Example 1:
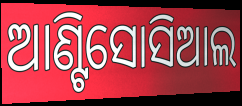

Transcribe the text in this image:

ଆଣ୍ଟିସୋସିଆଲ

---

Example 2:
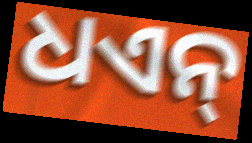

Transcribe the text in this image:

ଧଏନ୍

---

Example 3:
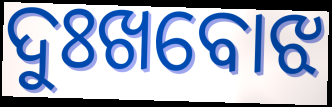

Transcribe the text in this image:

ଦୁଃଖବୋଝ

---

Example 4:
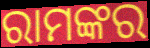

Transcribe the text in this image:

ରାମଙ୍କର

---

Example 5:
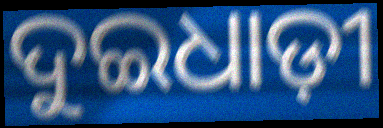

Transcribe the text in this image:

ଦୁଇଧାଡ଼ୀ